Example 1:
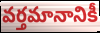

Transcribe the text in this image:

వర్తమానానికీ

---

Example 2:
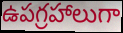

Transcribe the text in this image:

ఉపగ్రహాలుగా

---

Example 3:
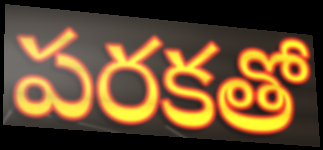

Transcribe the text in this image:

పరకతో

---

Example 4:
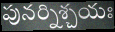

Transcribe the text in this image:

పునర్నిశ్చయః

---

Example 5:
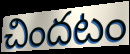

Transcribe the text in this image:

చిందటం